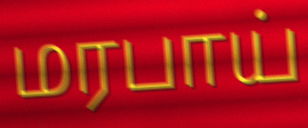
மரபாய்